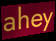
ahey